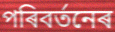
পৰিবৰ্তনেৰ